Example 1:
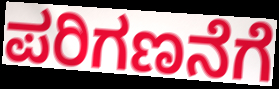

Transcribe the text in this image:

ಪರಿಗಣನೆಗೆ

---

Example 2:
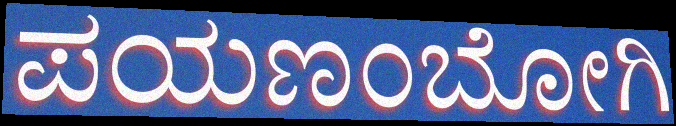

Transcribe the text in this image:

ಪಯಣಂಬೋಗಿ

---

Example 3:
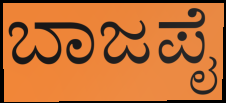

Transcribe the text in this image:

ಬಾಜಪೈ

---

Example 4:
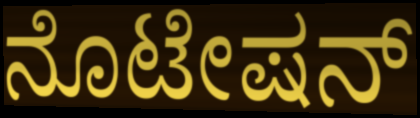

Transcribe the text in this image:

ನೊಟೇಷನ್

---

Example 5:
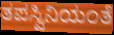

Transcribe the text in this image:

ತಪಸ್ವಿನಿಯಂತೆ